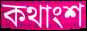
কথাংশ